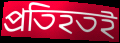
প্রতিহতই